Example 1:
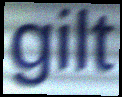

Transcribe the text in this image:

gilt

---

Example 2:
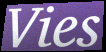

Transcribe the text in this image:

Vies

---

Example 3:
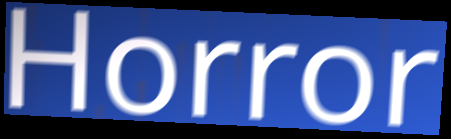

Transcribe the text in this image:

Horror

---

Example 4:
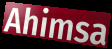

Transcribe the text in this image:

Ahimsa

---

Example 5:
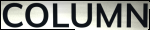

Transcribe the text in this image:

COLUMN